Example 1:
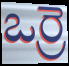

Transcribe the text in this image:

ఒర్రె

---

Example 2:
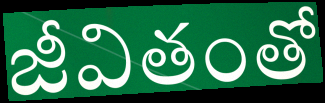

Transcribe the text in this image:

జీవితంతో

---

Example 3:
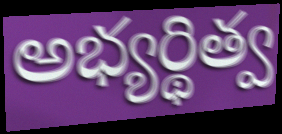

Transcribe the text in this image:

అభ్యర్థిత్వ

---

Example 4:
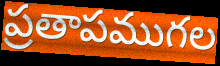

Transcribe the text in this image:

ప్రతాపముగల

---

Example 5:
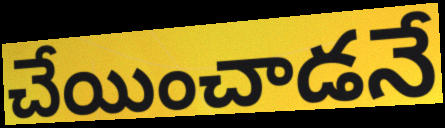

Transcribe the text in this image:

చేయించాడనే